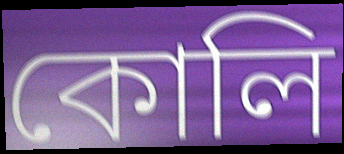
কোলি